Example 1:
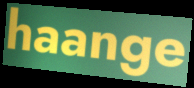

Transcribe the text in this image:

haange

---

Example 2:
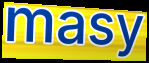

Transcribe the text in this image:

masy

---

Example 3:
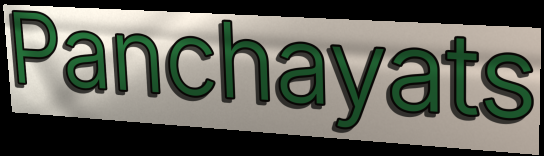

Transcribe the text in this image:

Panchayats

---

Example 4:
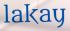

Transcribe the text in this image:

lakay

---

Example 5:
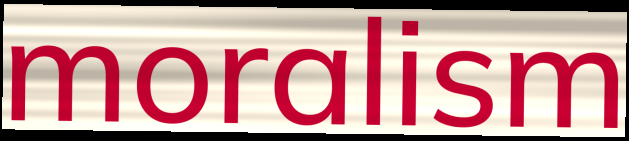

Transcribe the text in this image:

moralism